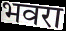
भवरा